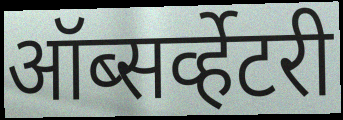
ऑब्सर्व्हेटरी